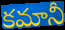
కమానీ